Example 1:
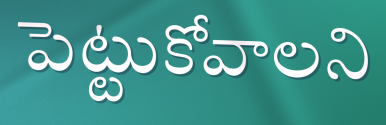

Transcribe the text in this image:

పెట్టుకోవాలని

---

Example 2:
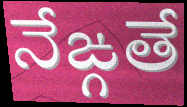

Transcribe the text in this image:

నేఙ్గతే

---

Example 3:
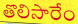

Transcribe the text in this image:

తొలిసారేం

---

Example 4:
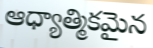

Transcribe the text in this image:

ఆధ్యాత్మికమైన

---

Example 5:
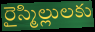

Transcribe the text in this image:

రైస్మిల్లులకు